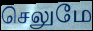
செலுமே